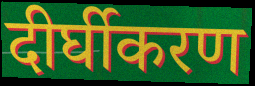
दीर्घीकरण